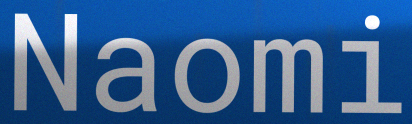
Naomi